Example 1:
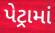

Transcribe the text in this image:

પેટ્રામાં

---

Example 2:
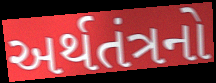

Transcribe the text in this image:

અર્થતંત્રનો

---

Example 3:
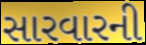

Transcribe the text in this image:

સારવારની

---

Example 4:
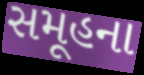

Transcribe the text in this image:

સમૂહના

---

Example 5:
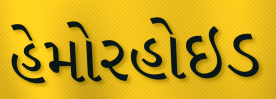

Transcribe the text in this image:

હેમોરહોઇડ